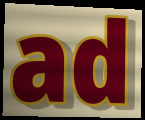
ad